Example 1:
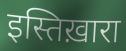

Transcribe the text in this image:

इस्तिख़ारा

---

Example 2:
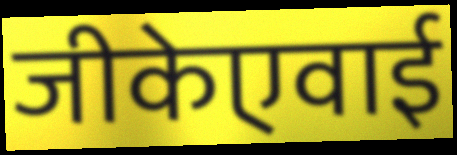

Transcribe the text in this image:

जीकेएवाई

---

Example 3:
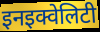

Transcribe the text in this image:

इनइक्वेलिटी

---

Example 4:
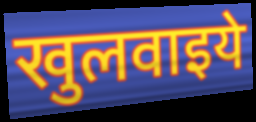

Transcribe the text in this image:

खुलवाइये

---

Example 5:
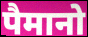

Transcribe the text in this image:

पैमानो